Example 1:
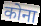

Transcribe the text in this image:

कोना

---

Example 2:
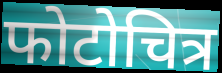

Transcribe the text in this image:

फोटोचित्र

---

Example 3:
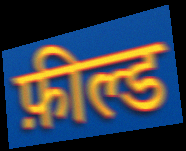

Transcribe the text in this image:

फ़ील्ड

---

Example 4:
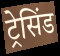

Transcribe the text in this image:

ट्रेसिंड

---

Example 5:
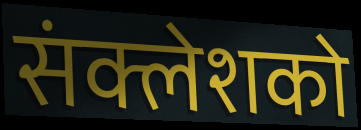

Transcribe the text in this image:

संक्लेशको